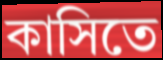
কাসিতে